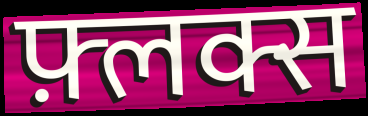
फ़्लक्स